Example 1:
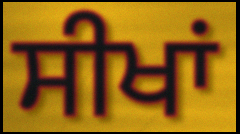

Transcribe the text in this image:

ਸੀਖਾਂ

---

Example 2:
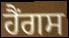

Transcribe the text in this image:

ਹੈਂਗਸ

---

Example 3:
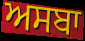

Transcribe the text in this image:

ਅਸਬਾ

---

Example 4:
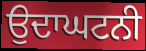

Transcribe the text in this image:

ਉਦਾਘਟਨੀ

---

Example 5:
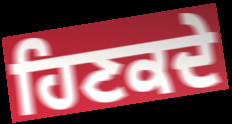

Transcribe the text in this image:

ਹਿਣਕਦੇ